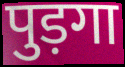
पुड़गा